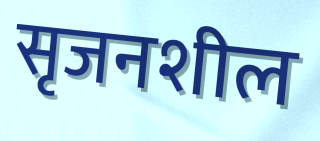
सृजनशील